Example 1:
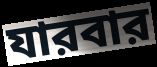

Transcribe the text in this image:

যারবার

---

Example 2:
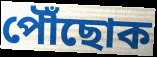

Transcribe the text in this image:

পৌঁছোক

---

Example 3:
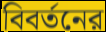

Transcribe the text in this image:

বিবর্তনের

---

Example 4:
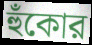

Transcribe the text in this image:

হুঁকোর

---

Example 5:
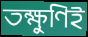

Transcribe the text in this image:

তক্ষুণিই